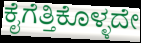
ಕೈಗೆತ್ತಿಕೊಳ್ಳದೇ